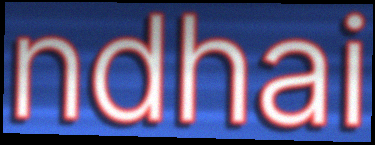
ndhai